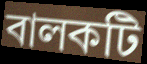
বালকটি